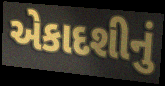
એકાદશીનું